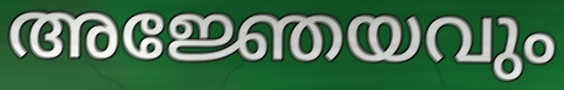
അജ്ഞേയവും